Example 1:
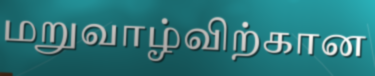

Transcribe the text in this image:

மறுவாழ்விற்கான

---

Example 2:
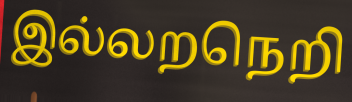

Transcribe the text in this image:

இல்லறநெறி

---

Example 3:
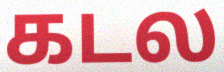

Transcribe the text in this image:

கடல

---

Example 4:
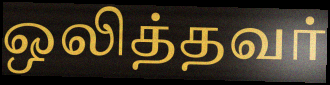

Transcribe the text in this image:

ஒலித்தவர்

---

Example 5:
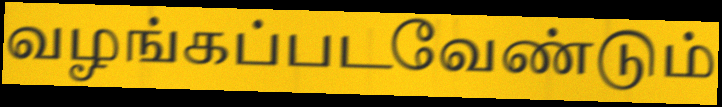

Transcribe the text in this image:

வழங்கப்படவேண்டும்